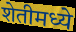
शेतीमध्ये